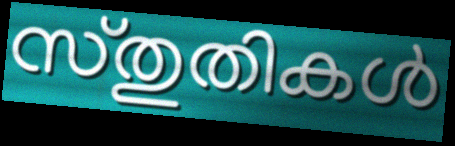
സ്തുതികൾ